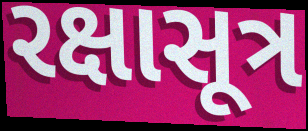
રક્ષાસૂત્ર